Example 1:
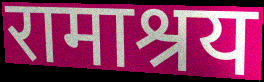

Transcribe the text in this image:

रामाश्रय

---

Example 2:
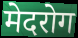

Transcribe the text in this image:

मेदरोग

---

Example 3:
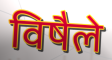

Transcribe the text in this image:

विषैले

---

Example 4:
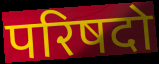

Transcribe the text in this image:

परिषदो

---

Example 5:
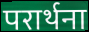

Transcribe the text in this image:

परार्थना